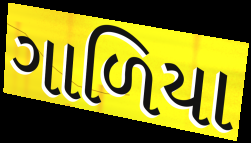
ગાળિયા